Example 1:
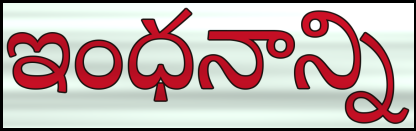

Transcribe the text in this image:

ఇంధనాన్ని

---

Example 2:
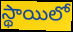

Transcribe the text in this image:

స్థాయిలో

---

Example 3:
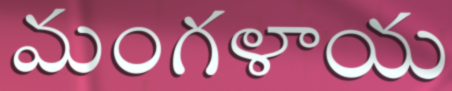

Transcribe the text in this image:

మంగళాయ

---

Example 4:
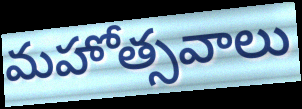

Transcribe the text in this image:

మహోత్సవాలు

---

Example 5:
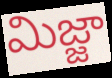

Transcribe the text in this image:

మిజ్జా